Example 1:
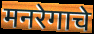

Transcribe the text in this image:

मनरेगाचे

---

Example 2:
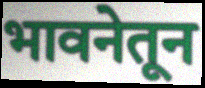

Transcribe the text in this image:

भावनेतून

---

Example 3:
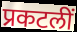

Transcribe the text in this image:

प्रकटलीं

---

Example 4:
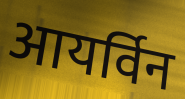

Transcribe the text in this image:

आयर्विन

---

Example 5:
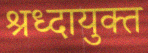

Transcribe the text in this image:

श्रध्दायुक्त